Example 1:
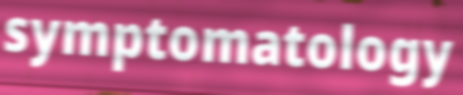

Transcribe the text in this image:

symptomatology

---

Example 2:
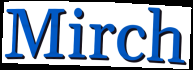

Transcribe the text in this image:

Mirch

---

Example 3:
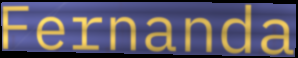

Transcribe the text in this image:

Fernanda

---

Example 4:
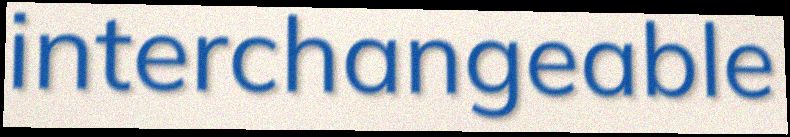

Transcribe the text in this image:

interchangeable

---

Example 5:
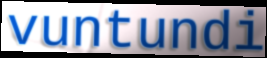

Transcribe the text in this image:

vuntundi